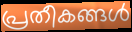
പ്രതീകങ്ങൾ